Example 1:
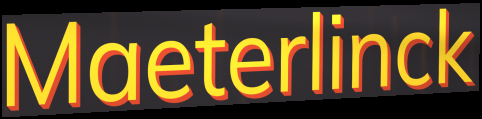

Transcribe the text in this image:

Maeterlinck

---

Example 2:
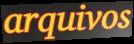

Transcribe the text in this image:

arquivos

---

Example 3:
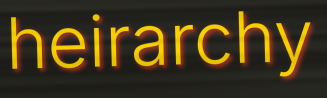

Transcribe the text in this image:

heirarchy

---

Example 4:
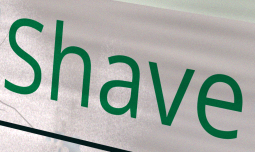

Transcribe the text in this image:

Shave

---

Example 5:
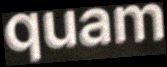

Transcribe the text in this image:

quam